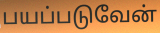
பயப்படுவேன்